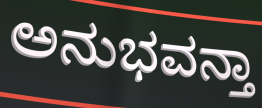
ಅನುಭವನ್ತಾ